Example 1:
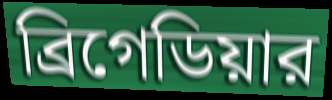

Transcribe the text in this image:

ব্রিগেডিয়ার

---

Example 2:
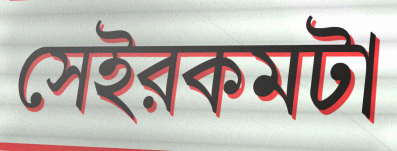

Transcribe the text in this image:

সেইরকমটা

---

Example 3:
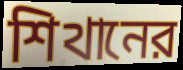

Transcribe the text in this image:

শিথানের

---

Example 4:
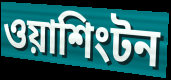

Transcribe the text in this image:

ওয়াশিংটন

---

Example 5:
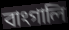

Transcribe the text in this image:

বাংগালি